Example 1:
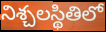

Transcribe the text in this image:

నిశ్చలస్థితిలో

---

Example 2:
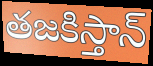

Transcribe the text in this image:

తజకిస్తాన్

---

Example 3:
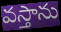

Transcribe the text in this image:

వస్తాను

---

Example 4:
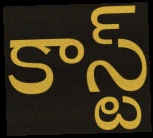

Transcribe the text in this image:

కాస్ట్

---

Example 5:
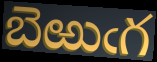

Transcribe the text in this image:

బెఱుఁగ